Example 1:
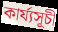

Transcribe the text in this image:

কাৰ্য্যসূচী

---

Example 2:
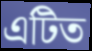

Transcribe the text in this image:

এটিত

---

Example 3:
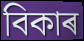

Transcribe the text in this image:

বিকাৰ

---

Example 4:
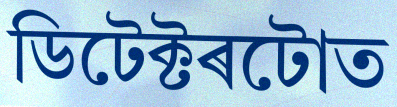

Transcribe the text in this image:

ডিটেক্টৰটোত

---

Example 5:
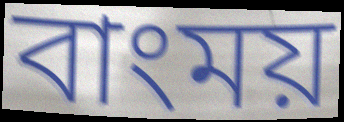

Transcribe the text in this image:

বাংময়